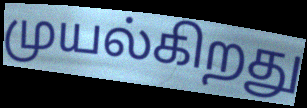
முயல்கிறது